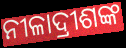
ନୀଳାଦ୍ରୀଶଙ୍କ